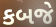
કબજે